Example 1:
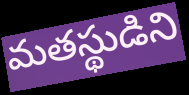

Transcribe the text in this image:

మతస్థుడిని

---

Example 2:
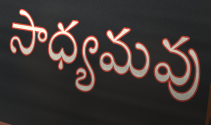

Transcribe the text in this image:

సాధ్యమవు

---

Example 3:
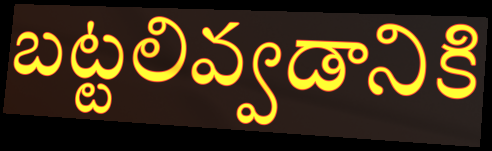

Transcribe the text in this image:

బట్టలివ్వడానికి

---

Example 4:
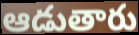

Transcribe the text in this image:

ఆడుతారు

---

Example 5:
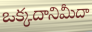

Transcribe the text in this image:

ఒక్కదానిమీదా